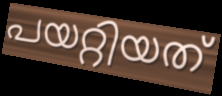
പയറ്റിയത്